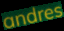
andres